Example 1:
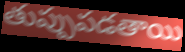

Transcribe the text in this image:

తుప్పుపడతాయి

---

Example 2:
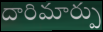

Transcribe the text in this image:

దారిమార్పు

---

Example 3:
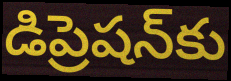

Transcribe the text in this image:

డిప్రెషన్‌కు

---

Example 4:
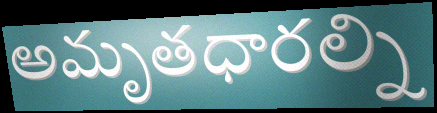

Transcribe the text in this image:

అమృతధారల్ని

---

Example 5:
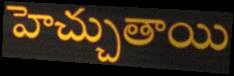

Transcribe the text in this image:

హెచ్చుతాయి